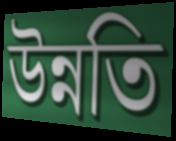
উন্নতি